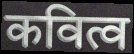
कवित्व